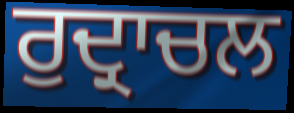
ਰੁਦ੍ਰਾਚਲ